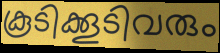
കൂടിക്കൂടിവരും